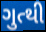
ગુત્થી